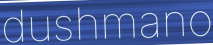
dushmano